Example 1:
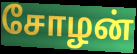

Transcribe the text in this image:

சோழன்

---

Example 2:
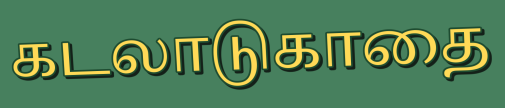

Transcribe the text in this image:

கடலாடுகாதை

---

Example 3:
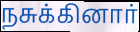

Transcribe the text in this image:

நசுக்கினார்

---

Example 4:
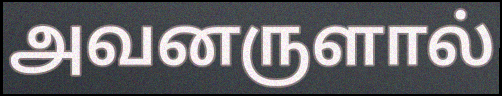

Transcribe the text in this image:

அவனருளால்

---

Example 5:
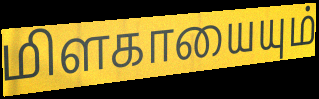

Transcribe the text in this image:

மிளகாயையும்